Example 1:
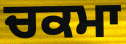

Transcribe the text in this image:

ਚਕਮਾ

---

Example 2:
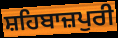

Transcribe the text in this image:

ਸ਼ਹਿਬਾਜ਼ਪੁਰੀ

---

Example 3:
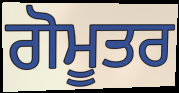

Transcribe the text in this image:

ਗੋਮੂਤਰ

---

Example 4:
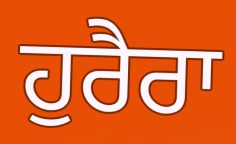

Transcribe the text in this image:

ਹੁਰੈਰਾ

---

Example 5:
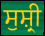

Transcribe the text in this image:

ਸੁਸ਼੍ਰੀ